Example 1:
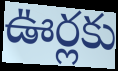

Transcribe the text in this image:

ఊర్లకు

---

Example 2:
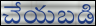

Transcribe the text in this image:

చేయబడి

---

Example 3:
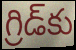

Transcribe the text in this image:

గ్రిడ్‌కు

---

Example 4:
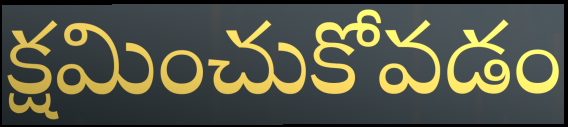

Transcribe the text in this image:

క్షమించుకోవడం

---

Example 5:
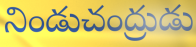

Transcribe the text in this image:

నిండుచంద్రుడు